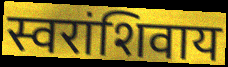
स्वरांशिवाय